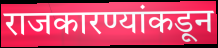
राजकारण्यांकडून